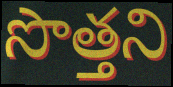
సొత్తని